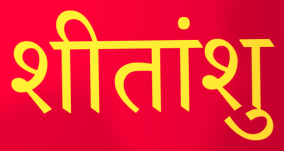
शीतांशु